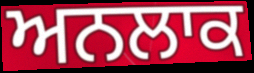
ਅਨਲਾਕ